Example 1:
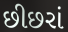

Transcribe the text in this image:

છીછરાં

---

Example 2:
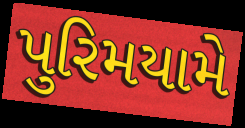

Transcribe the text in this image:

પુરિમયામે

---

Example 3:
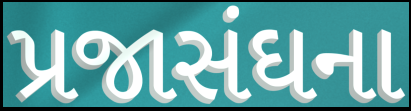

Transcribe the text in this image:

પ્રજાસંઘના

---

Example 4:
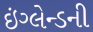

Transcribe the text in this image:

ઇંગ્લેન્ડની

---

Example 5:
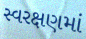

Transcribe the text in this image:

સ્વરક્ષણમાં